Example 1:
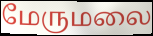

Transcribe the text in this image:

மேருமலை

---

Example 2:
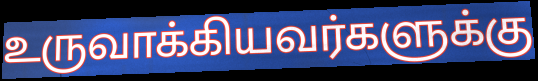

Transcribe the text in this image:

உருவாக்கியவர்களுக்கு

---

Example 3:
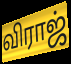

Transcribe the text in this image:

விராஜ்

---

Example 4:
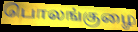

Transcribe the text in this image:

பொலங்குழை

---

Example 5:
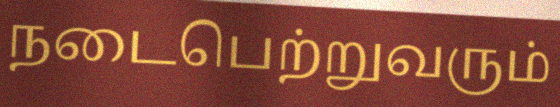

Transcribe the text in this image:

நடைபெற்றுவரும்